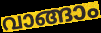
വാങ്ങാം